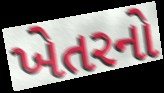
ખેતરનો